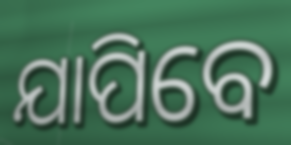
ଯାପିବେ